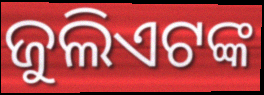
ଜୁଲିଏଟଙ୍କ